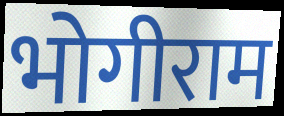
भोगीराम